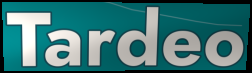
Tardeo